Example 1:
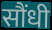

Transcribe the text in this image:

सौंधी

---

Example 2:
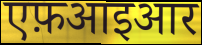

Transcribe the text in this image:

एफ़आइआर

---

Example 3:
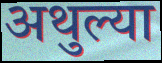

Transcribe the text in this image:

अथुल्या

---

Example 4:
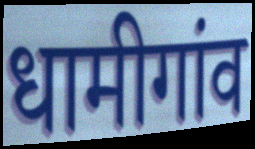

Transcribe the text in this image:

धामीगांव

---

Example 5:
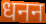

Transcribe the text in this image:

धनन